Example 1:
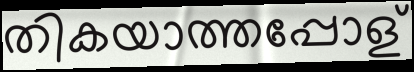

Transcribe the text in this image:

തികയാത്തപ്പോള്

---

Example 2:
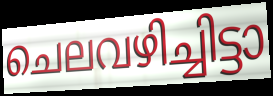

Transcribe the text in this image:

ചെലവഴിച്ചിട്ടാ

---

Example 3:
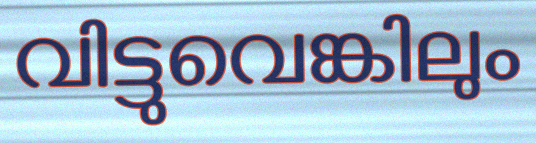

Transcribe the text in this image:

വിട്ടുവെങ്കിലും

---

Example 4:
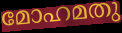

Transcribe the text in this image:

മോഹമതു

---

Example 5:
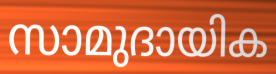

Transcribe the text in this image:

സാമുദായിക